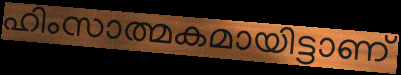
ഹിംസാത്മകമായിട്ടാണ്